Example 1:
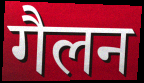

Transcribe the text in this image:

गैलन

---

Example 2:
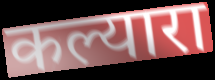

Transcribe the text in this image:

कल्यारा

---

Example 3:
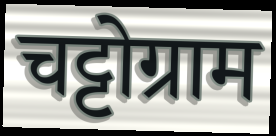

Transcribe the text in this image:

चट्टोग्राम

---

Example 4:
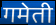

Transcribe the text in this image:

गमेती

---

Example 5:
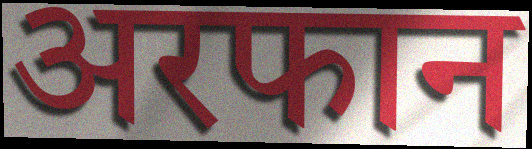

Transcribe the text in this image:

अरफान